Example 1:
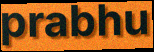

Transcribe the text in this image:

prabhu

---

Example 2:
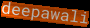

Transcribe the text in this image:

deepawali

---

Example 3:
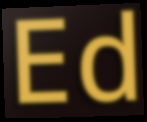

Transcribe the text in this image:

Ed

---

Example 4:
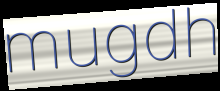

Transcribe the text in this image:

mugdh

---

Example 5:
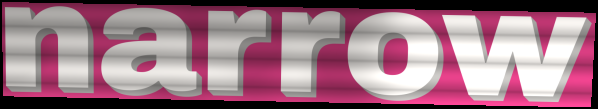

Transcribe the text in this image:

narrow